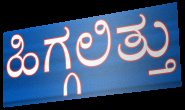
ಹಿಗ್ಗಲಿತ್ತು